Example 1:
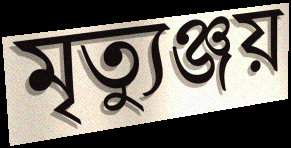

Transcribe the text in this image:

মৃত্যুঞ্জয়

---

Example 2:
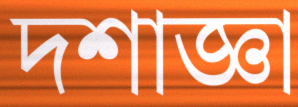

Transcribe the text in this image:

দশাজ্ঞা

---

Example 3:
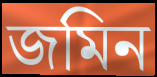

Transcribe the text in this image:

জমিন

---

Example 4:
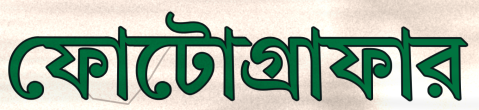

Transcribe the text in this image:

ফোটোগ্রাফার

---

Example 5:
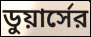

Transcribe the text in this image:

ডুয়ার্সের